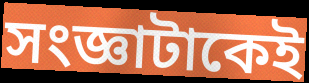
সংজ্ঞাটাকেই